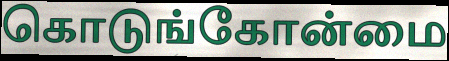
கொடுங்கோன்மை